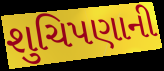
શુચિપણાની